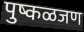
पुष्कळजण